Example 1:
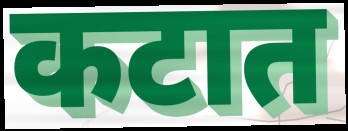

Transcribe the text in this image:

कटात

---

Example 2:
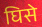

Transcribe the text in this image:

घिसे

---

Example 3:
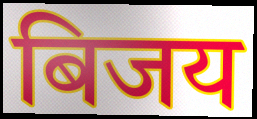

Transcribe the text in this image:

बिजय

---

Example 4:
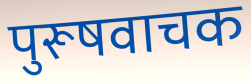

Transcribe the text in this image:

पुरूषवाचक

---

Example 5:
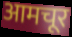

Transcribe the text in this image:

आमचूर